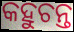
କହୁଚନ୍ତ